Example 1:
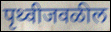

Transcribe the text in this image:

पृथ्वीजवळील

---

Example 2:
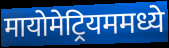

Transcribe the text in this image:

मायोमेट्रियममध्ये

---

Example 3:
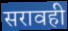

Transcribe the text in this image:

सरावही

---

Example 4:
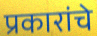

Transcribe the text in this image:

प्रकारांचे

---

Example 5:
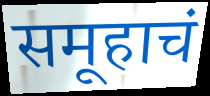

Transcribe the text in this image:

समूहाचं